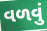
વળવું